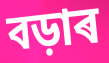
বড়াৰ